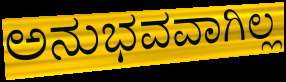
ಅನುಭವವಾಗಿಲ್ಲ